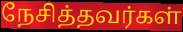
நேசித்தவர்கள்